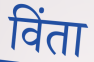
विंता